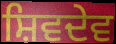
ਸ਼ਿਵਦੇਵ